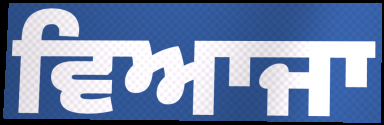
ਵਿਆਜਾ